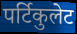
पर्टिकुलेट